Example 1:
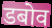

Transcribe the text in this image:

डबोव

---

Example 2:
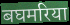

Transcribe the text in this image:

बघमरिया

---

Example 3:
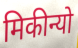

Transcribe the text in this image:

मिकीन्यो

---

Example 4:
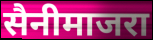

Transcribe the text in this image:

सैनीमाजरा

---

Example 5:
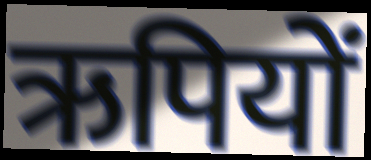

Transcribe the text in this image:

ऋपियों